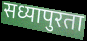
सध्यापुरता